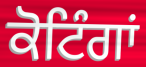
ਕੋਟਿੰਗਾਂ